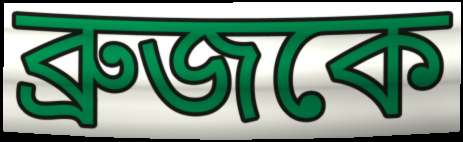
ব্রুজকে